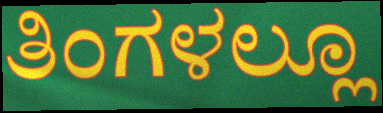
ತಿಂಗಳಲ್ಲೂ